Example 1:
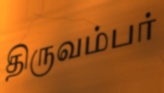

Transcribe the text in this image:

திருவம்பர்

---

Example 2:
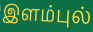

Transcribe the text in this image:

இளம்புல்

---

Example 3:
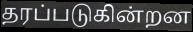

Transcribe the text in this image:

தரப்படுகின்றன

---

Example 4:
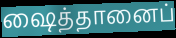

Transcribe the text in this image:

ஷைத்தானைப்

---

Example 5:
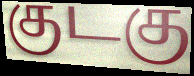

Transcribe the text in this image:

குடகு